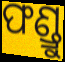
ଫଣ୍ଡ୍ରୁ